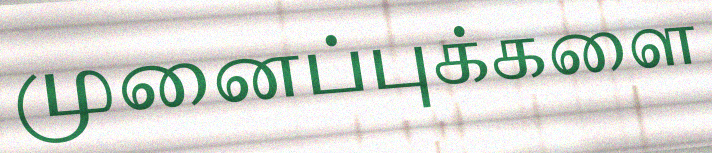
முனைப்புக்களை